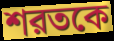
শরতকে